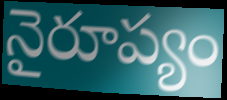
నైరూప్యం